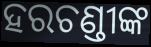
ହରଚଣ୍ଡୀଙ୍କ